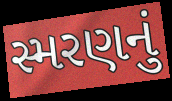
સ્મરણનું